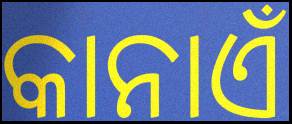
କାନାଏଁ